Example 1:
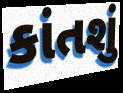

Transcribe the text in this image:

કાંતશું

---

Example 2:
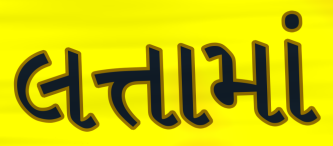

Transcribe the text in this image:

લત્તામાં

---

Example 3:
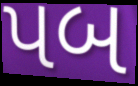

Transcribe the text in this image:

પબ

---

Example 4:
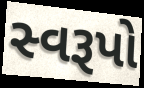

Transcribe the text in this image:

સ્વરૂપો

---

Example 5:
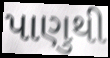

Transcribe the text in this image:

પાણુથી